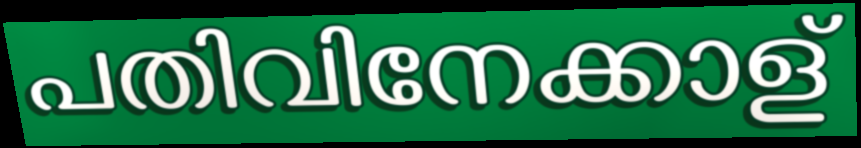
പതിവിനേക്കാള്